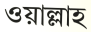
ওয়াল্লাহ